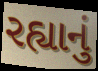
રહ્યાનું